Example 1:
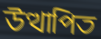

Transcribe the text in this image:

উত্থাপিত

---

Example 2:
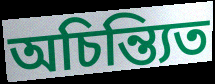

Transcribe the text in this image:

অচিন্ত্যিত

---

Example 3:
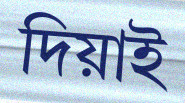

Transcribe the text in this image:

দিয়াই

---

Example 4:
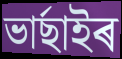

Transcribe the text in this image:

ভাৰ্ছাইৰ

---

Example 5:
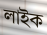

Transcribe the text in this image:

লাইক